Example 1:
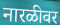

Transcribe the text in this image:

नारळीवर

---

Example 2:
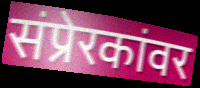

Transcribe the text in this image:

संप्रेरकांवर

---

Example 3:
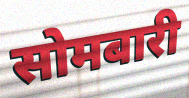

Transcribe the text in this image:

सोमबारी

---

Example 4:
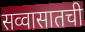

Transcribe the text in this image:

सव्वासातची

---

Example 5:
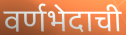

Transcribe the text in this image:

वर्णभेदाची